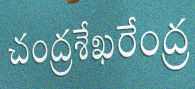
చంద్రశేఖరేంద్ర